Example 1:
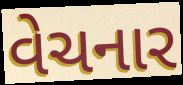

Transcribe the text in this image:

વેચનાર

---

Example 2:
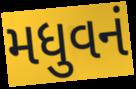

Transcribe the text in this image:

મધુવનં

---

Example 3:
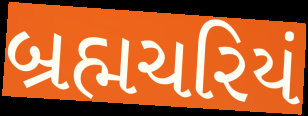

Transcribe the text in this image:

બ્રહ્મચરિયં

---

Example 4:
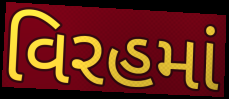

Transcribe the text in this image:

વિરહમાં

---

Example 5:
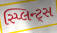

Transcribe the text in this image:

સ્પ્લિન્ટ્સ